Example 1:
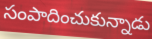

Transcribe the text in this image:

సంపాదించుకున్నాడు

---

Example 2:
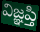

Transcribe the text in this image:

విజ్ఞప్తి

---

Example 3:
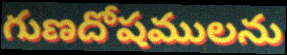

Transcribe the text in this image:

గుణదోషములను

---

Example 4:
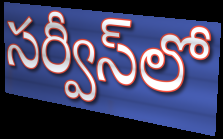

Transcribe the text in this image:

సర్వీస్‌లో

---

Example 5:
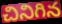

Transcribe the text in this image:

చినిగిన